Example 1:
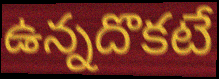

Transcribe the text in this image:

ఉన్నదొకటే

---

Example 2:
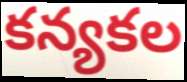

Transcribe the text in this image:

కన్యకల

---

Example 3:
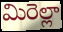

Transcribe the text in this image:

మిరెల్లా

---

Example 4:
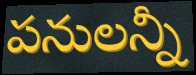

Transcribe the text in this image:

పనులన్నీ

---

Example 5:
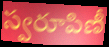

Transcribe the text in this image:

స్వరూపిణీ